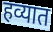
हव्यात